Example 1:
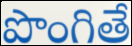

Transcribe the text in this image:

పొంగితే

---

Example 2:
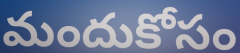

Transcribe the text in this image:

మందుకోసం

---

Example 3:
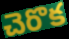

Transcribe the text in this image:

చెరొక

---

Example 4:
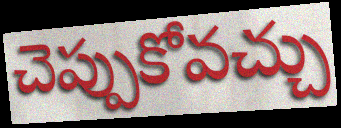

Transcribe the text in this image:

చెప్పుకోవచ్చు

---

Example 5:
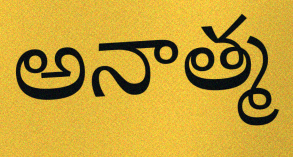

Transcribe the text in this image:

అనాత్మ